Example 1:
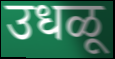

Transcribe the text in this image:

उधळू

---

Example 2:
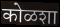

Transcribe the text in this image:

कोळशा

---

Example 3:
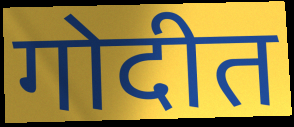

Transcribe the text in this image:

गोदीत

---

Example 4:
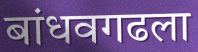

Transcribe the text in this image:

बांधवगढला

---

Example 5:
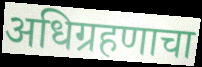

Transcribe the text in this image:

अधिग्रहणाचा